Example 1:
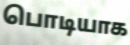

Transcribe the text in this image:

பொடியாக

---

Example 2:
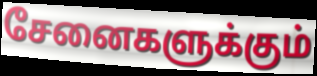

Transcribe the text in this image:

சேனைகளுக்கும்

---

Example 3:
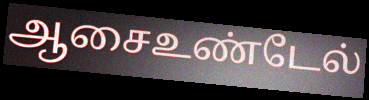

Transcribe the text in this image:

ஆசைஉண்டேல்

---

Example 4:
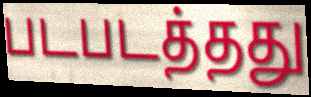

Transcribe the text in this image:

படபடத்தது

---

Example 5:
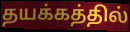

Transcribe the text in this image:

தயக்கத்தில்